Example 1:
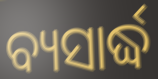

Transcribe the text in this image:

ବ୍ୟସାର୍ଦ୍ଧ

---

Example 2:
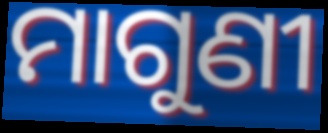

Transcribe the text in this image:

ମାଗୁଣୀ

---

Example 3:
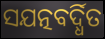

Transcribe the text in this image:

ସଯତ୍ନବର୍ଦ୍ଧିତ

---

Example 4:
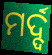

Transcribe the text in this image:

ମର୍ଦ୍ଦ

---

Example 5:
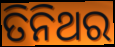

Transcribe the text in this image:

ତିନିଥର